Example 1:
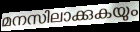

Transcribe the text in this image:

മനസിലാക്കുകയും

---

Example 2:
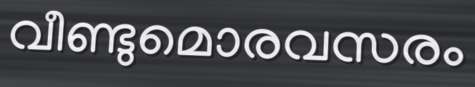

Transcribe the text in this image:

വീണ്ടുമൊരവസരം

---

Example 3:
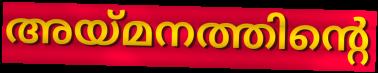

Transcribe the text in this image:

അയ്മനത്തിന്റെ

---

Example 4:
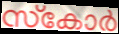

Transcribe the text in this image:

സ്‌കോർ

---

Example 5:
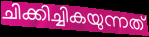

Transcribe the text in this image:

ചിക്കിച്ചികയുന്നത്